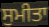
ਸੁਮੀਤਾ